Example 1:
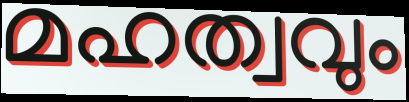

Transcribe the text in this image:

മഹത്വവും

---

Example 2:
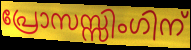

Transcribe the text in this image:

പ്രോസസ്സിംഗിന്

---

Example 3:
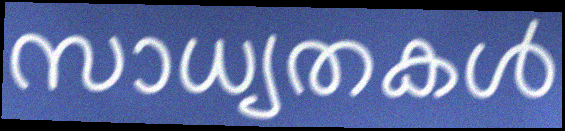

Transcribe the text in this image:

സാധ്യതകൾ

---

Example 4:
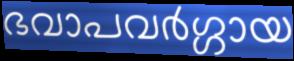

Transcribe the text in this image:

ഭവാപവർഗ്ഗായ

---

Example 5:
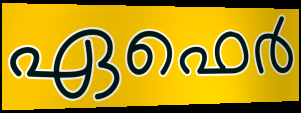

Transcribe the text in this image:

ഏഫെർ